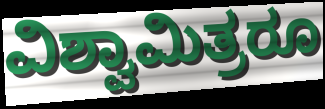
ವಿಶ್ವಾಮಿತ್ರರೂ